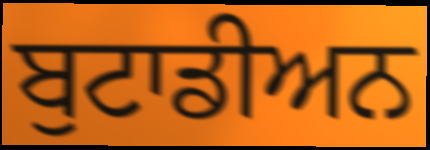
ਬੁਟਾਡੀਅਨ